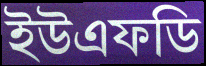
ইউএফডি